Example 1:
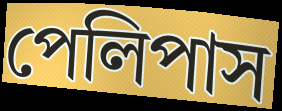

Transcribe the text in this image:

পেলিপাস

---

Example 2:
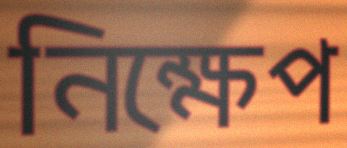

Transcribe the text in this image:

নিক্ষেপ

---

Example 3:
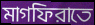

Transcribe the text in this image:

মাগফিরাতে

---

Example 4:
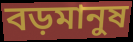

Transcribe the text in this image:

বড়মানুষ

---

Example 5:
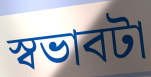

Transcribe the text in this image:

স্বভাবটা